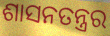
ଶାସନତନ୍ତ୍ରର